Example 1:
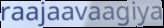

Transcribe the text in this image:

raajaavaagiya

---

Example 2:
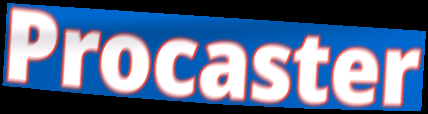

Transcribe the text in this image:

Procaster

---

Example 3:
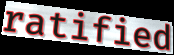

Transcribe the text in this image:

ratified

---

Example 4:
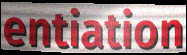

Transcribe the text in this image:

entiation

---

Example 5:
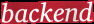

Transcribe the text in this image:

backend